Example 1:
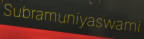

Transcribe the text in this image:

Subramuniyaswami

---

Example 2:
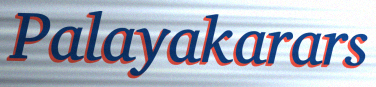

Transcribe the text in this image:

Palayakarars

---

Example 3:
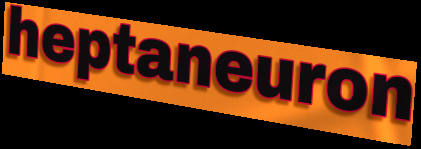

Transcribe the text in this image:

heptaneuron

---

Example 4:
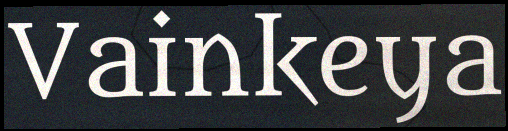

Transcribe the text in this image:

Vainkeya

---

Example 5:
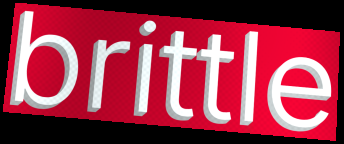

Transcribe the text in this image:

brittle